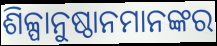
ଶିଳ୍ପାନୁଷ୍ଠାନମାନଙ୍କର